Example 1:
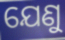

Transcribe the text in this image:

ଯେଣୁ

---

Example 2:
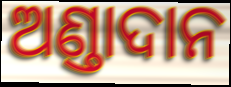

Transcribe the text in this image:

ଅଣ୍ଡାଦାନ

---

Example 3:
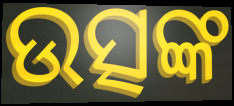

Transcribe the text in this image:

ଉତ୍ସଙ୍କ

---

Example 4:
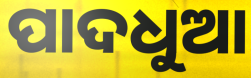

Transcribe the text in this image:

ପାଦଧୁଆ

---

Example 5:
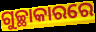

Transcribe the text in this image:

ଗୁଚ୍ଛାକାରରେ